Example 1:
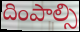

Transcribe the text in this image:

దింపాల్సి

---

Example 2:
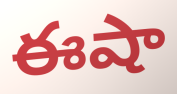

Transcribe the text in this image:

ఈషా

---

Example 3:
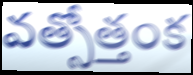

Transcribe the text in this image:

వత్సోత్తంక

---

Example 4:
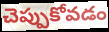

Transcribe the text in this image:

చెప్పుకోవడం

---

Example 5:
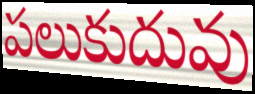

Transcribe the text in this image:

పలుకుదువు